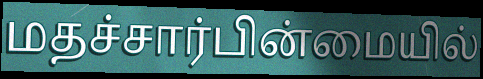
மதச்சார்பின்மையில்